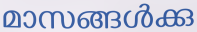
മാസങ്ങൾക്കു